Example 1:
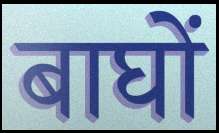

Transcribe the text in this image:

बाघों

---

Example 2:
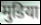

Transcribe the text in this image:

मुडिया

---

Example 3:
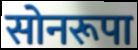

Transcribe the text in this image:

सोनरूपा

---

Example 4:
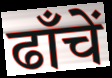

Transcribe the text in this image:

ढाँचें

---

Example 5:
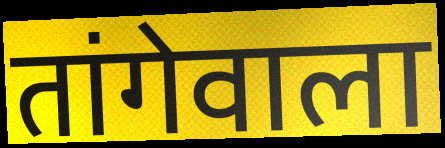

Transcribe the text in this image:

तांगेवाला